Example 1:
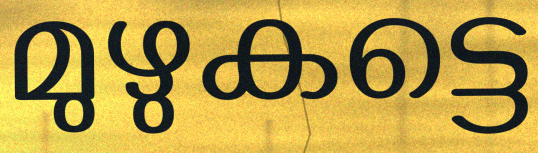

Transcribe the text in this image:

മുഴുകട്ടെ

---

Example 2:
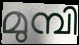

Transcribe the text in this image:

മുമ്പി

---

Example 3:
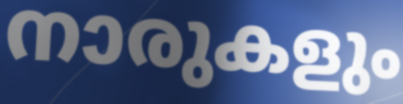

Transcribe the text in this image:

നാരുകളും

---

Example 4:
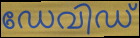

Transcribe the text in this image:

ഡേവിഡ്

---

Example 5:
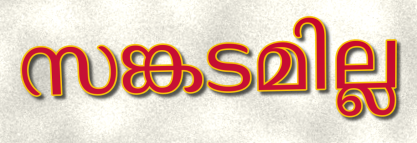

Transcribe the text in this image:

സങ്കടമില്ല